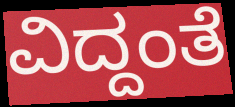
ವಿದ್ದಂತೆ